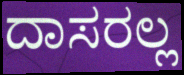
ದಾಸರಲ್ಲ